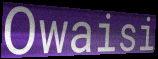
Owaisi